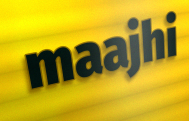
maajhi